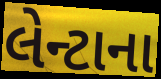
લેન્ટાના